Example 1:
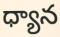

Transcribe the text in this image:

ధ్యాన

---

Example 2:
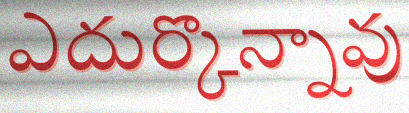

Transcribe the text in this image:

ఎదుర్కొన్నావు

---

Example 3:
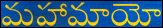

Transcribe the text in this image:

మహామాయో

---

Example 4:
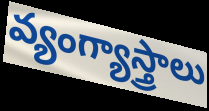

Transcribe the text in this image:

వ్యంగ్యాస్త్రాలు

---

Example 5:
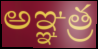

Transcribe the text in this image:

అఞ్ఞత్ర